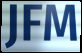
JFM